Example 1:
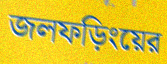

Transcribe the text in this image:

জলফড়িংয়ের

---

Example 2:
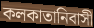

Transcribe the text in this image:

কলকাতানিবাসী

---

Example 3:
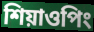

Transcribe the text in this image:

শিয়াওপিং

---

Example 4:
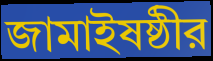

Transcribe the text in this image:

জামাইষষ্ঠীর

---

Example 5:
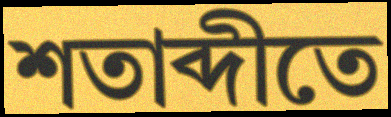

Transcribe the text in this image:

শতাব্দীতে